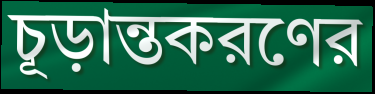
চূড়ান্তকরণের